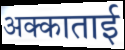
अक्काताई